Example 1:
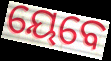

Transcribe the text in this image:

ୟେବେ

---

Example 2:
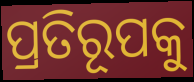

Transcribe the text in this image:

ପ୍ରତିରୂପକୁ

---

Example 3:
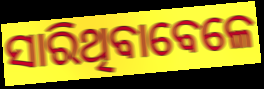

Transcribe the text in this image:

ସାରିଥିବାବେଳେ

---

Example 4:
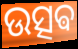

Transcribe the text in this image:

ଉତ୍ସଵ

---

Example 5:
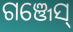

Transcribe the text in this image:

ଗଞ୍ଜେସ୍